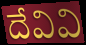
దేవివి